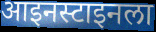
आइनस्टाइनला